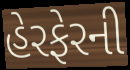
હેરફેરની